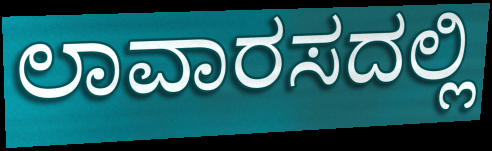
ಲಾವಾರಸದಲ್ಲಿ